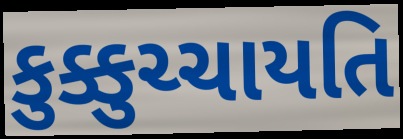
કુક્કુચ્ચાયતિ